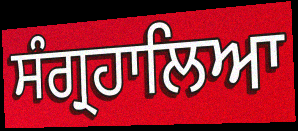
ਸੰਗ੍ਰਹਾਲਿਆ